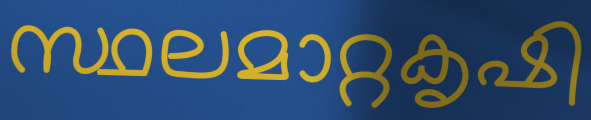
സ്ഥലമാറ്റകൃഷി